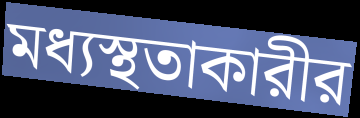
মধ্যস্থতাকারীর